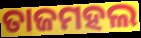
ତାଜମହଲ